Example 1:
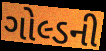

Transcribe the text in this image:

ગોલ્ડની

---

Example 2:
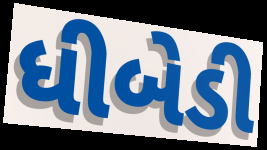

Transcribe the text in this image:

ધીબેડી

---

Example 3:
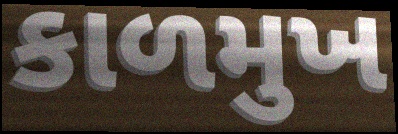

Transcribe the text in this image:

કાળમુખ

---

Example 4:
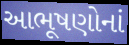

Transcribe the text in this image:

આભૂષણોનાં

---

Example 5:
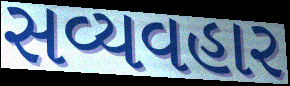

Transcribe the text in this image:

સવ્યવહાર